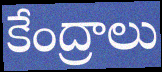
కేంద్రాలు